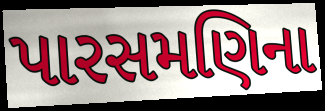
પારસમણિના